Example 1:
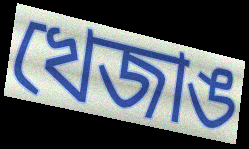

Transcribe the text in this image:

খেজাঙ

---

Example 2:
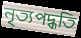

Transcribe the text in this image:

নৃত্যপদ্ধতি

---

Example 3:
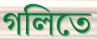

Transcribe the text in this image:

গলিতে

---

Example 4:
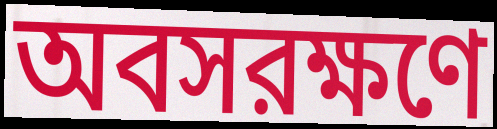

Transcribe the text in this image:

অবসরক্ষণে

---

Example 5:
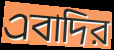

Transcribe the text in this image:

এবাদির